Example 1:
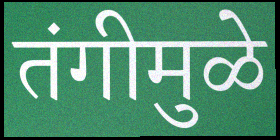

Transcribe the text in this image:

तंगीमुळे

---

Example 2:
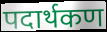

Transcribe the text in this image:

पदार्थकण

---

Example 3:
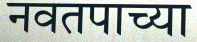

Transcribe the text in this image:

नवतपाच्या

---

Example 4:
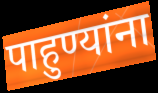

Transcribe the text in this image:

पाहुण्यांना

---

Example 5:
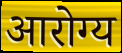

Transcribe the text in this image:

आरोग्य